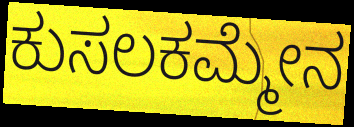
ಕುಸಲಕಮ್ಮೇನ